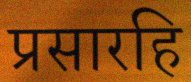
प्रसारहि